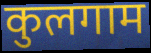
कुलगाम